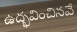
ఉద్భవించినవే